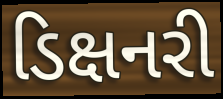
ડિક્ષનરી